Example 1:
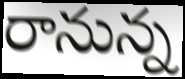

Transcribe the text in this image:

రానున్న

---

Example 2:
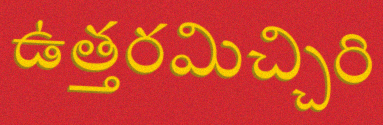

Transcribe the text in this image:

ఉత్తరమిచ్చిరి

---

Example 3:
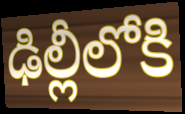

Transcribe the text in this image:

ఢిల్లీలోకి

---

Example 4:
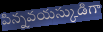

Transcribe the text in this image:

పిన్నవయస్కుడిగా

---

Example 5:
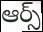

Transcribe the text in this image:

ఆర్స్